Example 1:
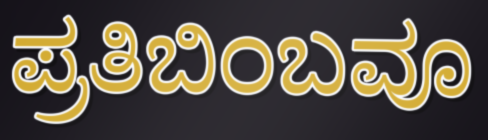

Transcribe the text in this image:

ಪ್ರತಿಬಿಂಬವೂ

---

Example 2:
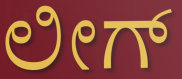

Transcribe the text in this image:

ಲೀಗ್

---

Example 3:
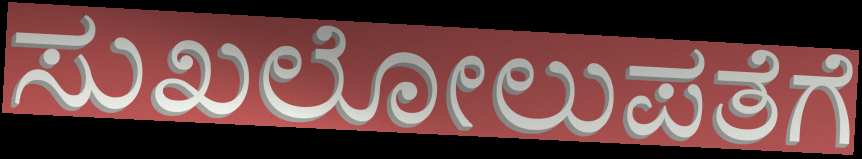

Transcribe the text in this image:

ಸುಖಲೋಲುಪತೆಗೆ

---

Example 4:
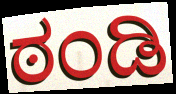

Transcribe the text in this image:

ಠಂಡಿ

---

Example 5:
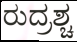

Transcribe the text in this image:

ರುದ್ರಶ್ಚ